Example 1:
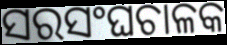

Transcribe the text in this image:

ସରସଂଘଚାଳକ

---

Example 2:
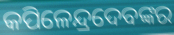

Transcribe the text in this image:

କପିଳେନ୍ଦ୍ରଦେବଙ୍କର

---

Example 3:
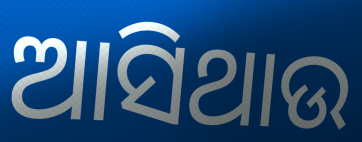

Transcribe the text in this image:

ଆସିଥାଉ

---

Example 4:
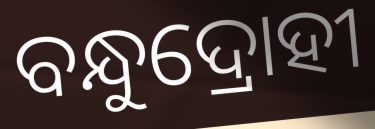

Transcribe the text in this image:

ବନ୍ଧୁଦ୍ରୋହୀ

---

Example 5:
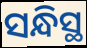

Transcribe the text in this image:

ସନ୍ଧିସ୍ଥ